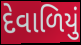
દેવાળિયું